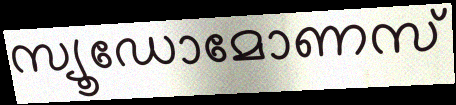
സ്യൂഡോമോണസ്